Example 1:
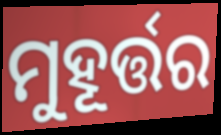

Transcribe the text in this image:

ମୁହୂର୍ତ୍ତର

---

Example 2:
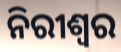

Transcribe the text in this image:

ନିରୀଶ୍ୱର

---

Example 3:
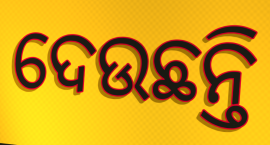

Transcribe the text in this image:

ଦେଉଛନ୍ତି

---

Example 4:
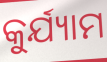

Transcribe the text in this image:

କୁର୍ଯ୍ୟାମ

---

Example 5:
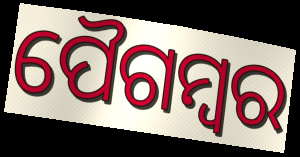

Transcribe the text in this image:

ପୈଗମ୍ବର